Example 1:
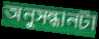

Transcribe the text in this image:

অনুসন্ধানটা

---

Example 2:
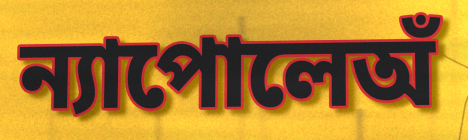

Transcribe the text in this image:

ন্যাপোলেঅঁ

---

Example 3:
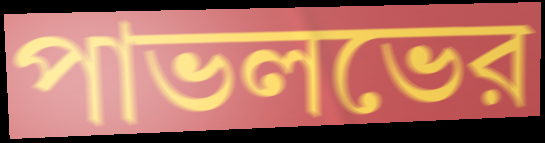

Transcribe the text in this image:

পাভলভের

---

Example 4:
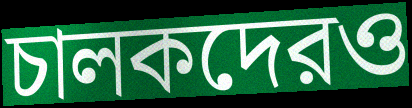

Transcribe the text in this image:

চালকদেরও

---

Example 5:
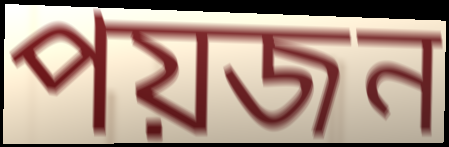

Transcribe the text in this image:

পয়জন